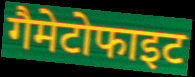
गैमेटोफाइट